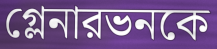
গ্লেনারভনকে